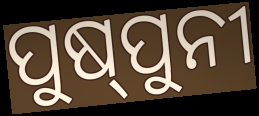
ପୁଷ୍‌ପୁନୀ